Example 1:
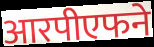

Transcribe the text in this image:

आरपीएफने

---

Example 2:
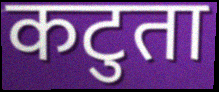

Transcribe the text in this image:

कटुता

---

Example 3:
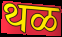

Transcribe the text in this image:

थळ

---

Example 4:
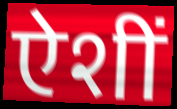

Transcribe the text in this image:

ऐशीं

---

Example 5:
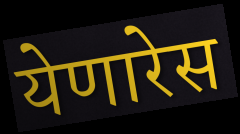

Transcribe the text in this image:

येणारेस